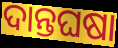
ଦାନ୍ତଘଷା